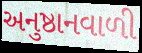
અનુષ્ઠાનવાળી